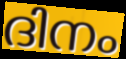
ദിനം